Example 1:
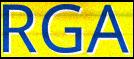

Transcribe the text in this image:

RGA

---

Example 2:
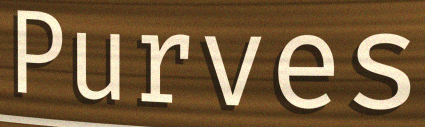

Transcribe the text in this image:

Purves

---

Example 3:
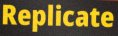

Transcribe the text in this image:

Replicate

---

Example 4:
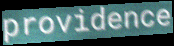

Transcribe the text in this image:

providence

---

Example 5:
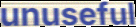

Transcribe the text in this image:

unuseful